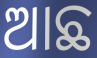
ଆଛ